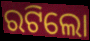
ରଟିଲୋ